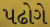
પઢોગે